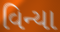
વિન્યા